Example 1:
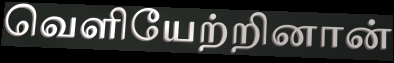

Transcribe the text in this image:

வெளியேற்றினான்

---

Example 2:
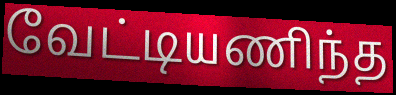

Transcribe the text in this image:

வேட்டியணிந்த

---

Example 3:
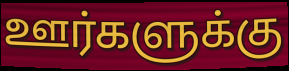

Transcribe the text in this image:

ஊர்களுக்கு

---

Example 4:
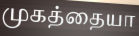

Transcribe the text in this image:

முகத்தையா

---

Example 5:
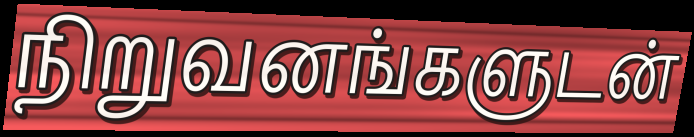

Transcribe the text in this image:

நிறுவனங்களுடன்